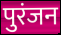
पुरंजन